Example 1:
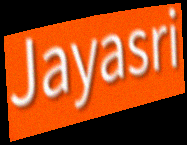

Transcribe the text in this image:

Jayasri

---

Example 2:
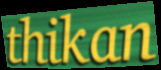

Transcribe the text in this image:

thikan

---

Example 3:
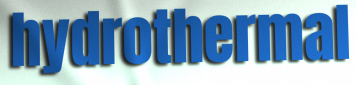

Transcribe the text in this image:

hydrothermal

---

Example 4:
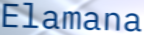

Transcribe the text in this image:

Elamana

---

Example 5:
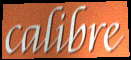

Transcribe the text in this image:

calibre